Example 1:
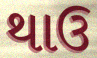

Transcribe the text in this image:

થાઉ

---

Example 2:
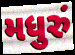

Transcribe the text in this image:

મધુરું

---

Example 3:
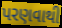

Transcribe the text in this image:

પરણવાથી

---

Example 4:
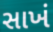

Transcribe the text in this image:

સાખં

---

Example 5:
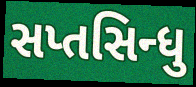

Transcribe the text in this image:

સપ્તસિન્ધુ